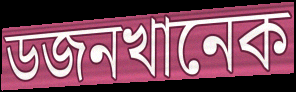
ডজনখানেক